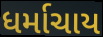
ધર્માચાય